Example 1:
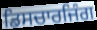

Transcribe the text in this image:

ਡਿਸਚਾਰਜਿੰਗ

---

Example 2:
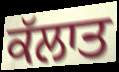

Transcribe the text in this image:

ਕੱਲਾਤ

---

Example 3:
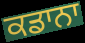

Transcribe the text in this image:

ਕਡਾਨਾ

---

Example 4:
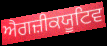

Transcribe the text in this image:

ਐਗਜ਼ੀਕਯੂਟਿਵ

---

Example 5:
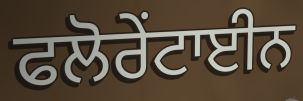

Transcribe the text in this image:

ਫਲੋਰੇਂਟਾਈਨ